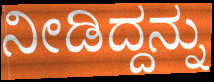
ನೀಡಿದ್ದನ್ನು